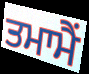
ਤਮਾਮੈਂ